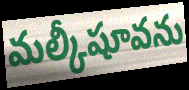
మల్కీషూవను